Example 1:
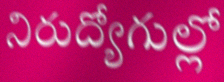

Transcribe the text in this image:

నిరుద్యోగుల్లో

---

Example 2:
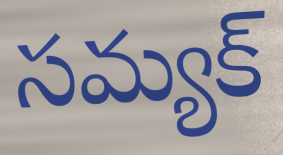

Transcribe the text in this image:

సమ్యక్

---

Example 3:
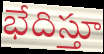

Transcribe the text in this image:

భేదిస్తూ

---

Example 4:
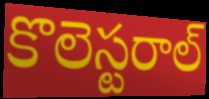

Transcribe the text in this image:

కొలెస్టరాల్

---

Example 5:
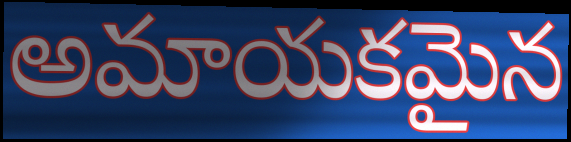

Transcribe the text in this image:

అమాయకమైన